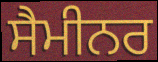
ਸੈਮੀਨਰ